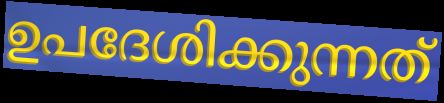
ഉപദേശിക്കുന്നത്